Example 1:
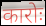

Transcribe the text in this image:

कारोः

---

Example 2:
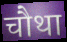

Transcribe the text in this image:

चौथा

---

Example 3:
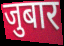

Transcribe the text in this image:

जुबार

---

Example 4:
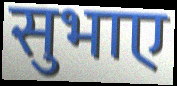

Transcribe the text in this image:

सुभाए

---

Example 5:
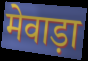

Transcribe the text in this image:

मेवाड़ा